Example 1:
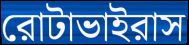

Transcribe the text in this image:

রোটাভাইরাস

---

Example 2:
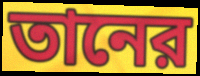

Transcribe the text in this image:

তানের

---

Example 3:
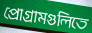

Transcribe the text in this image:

প্রোগ্রামগুলিতে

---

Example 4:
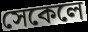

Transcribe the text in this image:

সেকেলে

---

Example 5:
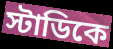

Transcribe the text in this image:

স্টাডিকে